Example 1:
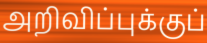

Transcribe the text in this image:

அறிவிப்புக்குப்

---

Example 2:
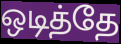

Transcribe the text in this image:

ஒடித்தே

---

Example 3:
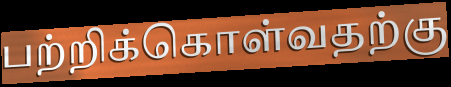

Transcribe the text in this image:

பற்றிக்கொள்வதற்கு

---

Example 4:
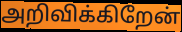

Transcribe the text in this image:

அறிவிக்கிறேன்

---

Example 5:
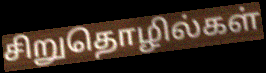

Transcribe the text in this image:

சிறுதொழில்கள்